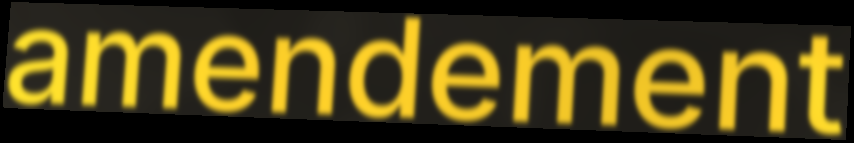
amendement